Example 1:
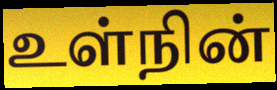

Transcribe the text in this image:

உள்நின்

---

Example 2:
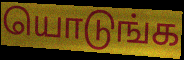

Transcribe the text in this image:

யொடுங்க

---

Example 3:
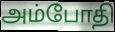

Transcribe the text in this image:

அம்போதி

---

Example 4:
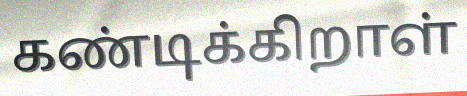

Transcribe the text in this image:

கண்டிக்கிறாள்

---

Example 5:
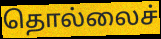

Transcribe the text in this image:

தொல்லைச்